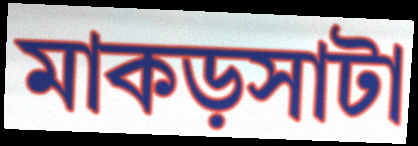
মাকড়সাটা